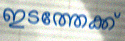
ഇടത്തേക്ക്